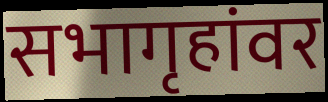
सभागृहांवर